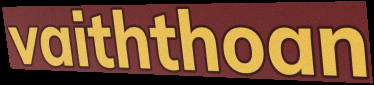
vaiththoan